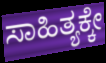
ಸಾಹಿತ್ಯಕ್ಕೇ